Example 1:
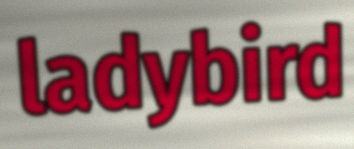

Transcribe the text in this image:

ladybird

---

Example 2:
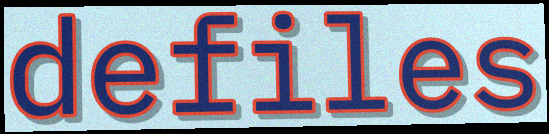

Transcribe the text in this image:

defiles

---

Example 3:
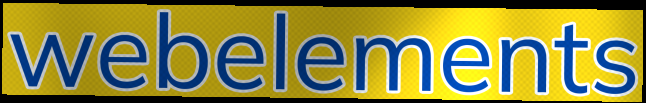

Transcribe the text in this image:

webelements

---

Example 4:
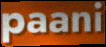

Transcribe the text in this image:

paani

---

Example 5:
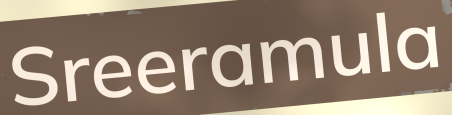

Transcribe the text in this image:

Sreeramula